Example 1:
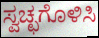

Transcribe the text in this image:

ಸ್ವಚ್ಛಗೊಳಿಸಿ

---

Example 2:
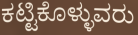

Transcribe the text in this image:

ಕಟ್ಟಿಕೊಳ್ಳುವರು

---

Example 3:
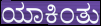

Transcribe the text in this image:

ಯಾಕಿಂತು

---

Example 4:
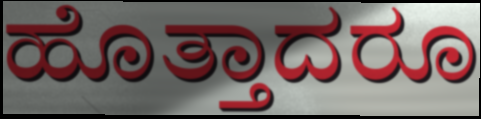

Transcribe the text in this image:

ಹೊತ್ತಾದರೂ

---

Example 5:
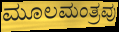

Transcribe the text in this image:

ಮೂಲಮಂತ್ರವು